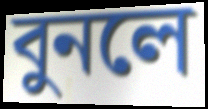
বুনলে